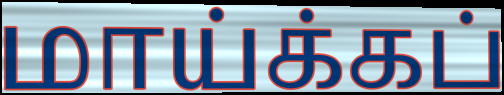
மாய்க்கப்